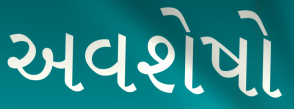
અવશેષો